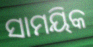
ସାମୟିକ